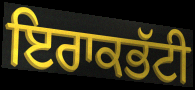
ਇਰਾਕਭੱਟੀ